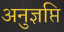
अनुज्ञप्ति